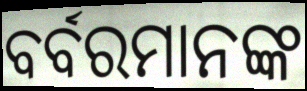
ବର୍ବରମାନଙ୍କ